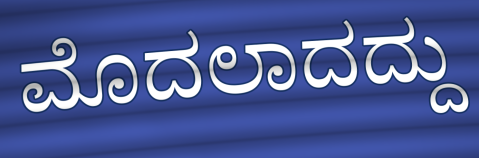
ಮೊದಲಾದದ್ದು